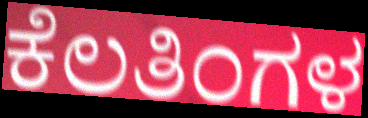
ಕೆಲತಿಂಗಳ